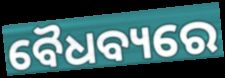
ବୈଧବ୍ୟରେ